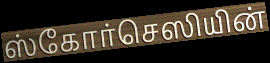
ஸ்கோர்செஸியின்